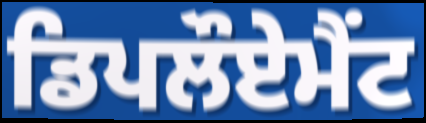
ਡਿਪਲੌਏਮੈਂਟ